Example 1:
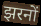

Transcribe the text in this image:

झरनों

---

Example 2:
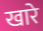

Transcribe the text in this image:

खारे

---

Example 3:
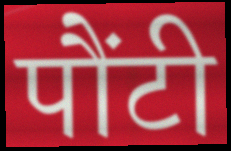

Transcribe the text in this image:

पौंटी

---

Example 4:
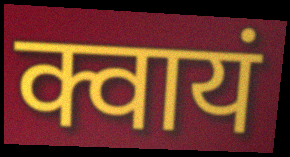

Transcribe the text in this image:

क्वायं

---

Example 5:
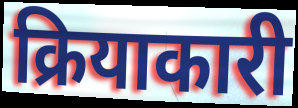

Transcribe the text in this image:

क्रियाकारी